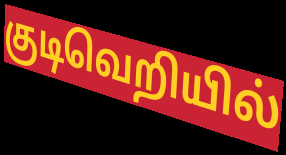
குடிவெறியில்